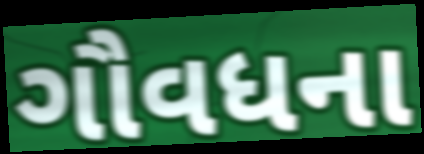
ગૌવધના